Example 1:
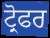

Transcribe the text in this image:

ਟ੍ਰੋਫਰ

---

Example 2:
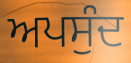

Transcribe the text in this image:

ਅਪਸੁੰਦ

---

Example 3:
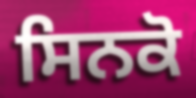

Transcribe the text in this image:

ਸਿਨਕੋ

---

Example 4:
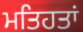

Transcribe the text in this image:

ਮਤਿਹਤਾਂ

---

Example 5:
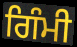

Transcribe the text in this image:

ਗਿੰਮੀ